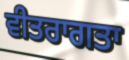
ਵੀਤਰਾਗਤਾ